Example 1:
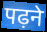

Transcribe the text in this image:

पढ़ने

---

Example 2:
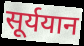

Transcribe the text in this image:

सूर्ययान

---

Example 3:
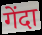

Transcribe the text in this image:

गेंदा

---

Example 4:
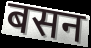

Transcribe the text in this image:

बसन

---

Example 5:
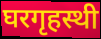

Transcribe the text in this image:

घरगृहस्थी